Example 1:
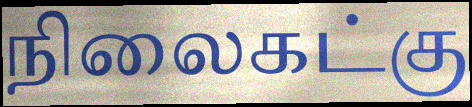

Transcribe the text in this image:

நிலைகட்கு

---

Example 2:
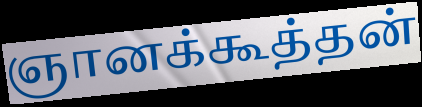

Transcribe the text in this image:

ஞானக்கூத்தன்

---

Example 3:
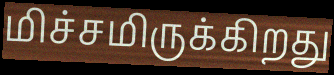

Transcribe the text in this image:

மிச்சமிருக்கிறது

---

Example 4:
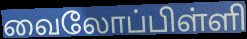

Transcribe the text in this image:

வைலோப்பிள்ளி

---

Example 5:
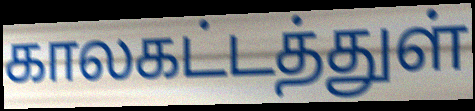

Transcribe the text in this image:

காலகட்டத்துள்